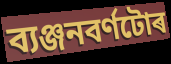
ব্যঞ্জনবৰ্ণটোৰ